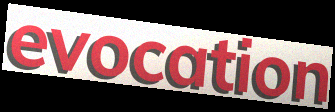
evocation